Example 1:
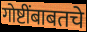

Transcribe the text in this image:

गोष्टींबाबतचे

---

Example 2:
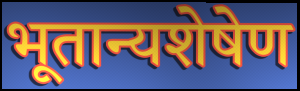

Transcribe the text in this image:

भूतान्यशेषेण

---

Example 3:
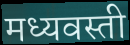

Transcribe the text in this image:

मध्यवस्ती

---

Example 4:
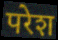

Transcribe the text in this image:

परेश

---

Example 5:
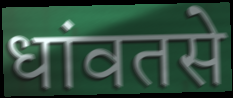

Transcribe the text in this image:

धांवतसे